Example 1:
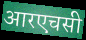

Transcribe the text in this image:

आरएचसी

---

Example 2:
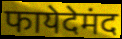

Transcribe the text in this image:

फायेदेमंद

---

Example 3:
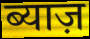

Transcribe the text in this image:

ब्याज़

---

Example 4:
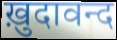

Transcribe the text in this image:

ख़ुदावन्द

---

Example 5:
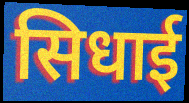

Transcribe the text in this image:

सिधाई